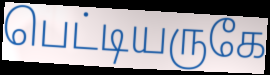
பெட்டியருகே